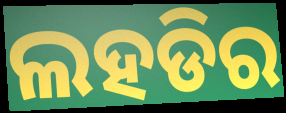
ଲହଡିର